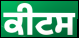
ਕੀਟਸ